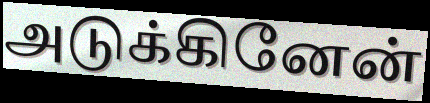
அடுக்கினேன்